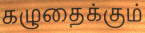
கழுதைக்கும்